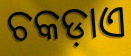
ଚକଡ଼ାଏ